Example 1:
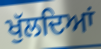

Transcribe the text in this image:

ਖੁੱਲਦਿਆਂ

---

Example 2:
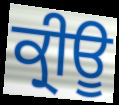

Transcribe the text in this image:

ਕ੍ਰੀਊ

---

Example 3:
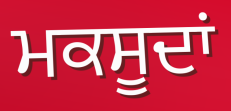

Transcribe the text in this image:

ਮਕਸੂਦਾਂ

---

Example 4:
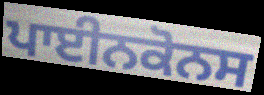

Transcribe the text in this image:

ਪਾਈਨਕੋਨਸ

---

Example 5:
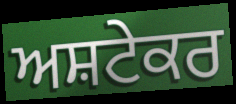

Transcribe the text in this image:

ਅਸ਼ਟੇਕਰ